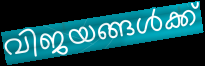
വിജയങ്ങൾക്ക്